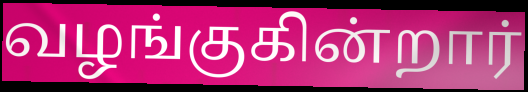
வழங்குகின்றார்